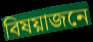
বিষয়াজনে